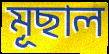
মূছাল